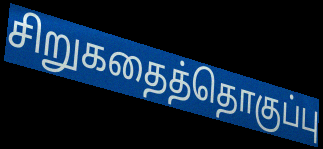
சிறுகதைத்தொகுப்பு